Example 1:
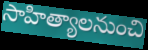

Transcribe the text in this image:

సాహిత్యాలనుంచి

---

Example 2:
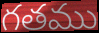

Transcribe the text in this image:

గతము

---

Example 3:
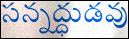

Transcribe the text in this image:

సన్నద్ధుడవు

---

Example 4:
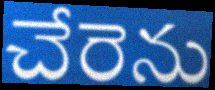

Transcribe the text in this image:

చేరెను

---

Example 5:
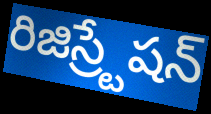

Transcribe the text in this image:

రిజిస్ర్టేషన్